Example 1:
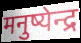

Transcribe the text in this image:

मनुष्येन्द्र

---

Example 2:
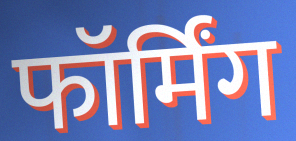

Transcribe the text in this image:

फॉर्मिंग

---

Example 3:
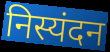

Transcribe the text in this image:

निस्यंदन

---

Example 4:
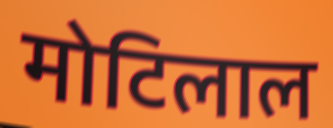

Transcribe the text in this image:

मोटिलाल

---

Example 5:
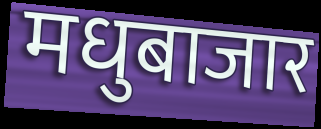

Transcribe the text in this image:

मधुबाजार